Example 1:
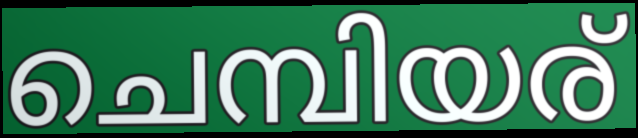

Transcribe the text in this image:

ചെമ്പിയര്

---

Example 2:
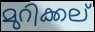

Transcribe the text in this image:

മുറിക്കല്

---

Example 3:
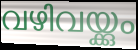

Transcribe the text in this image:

വഴിവയ്ക്കും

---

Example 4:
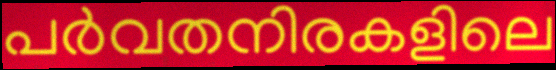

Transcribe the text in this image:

പർവതനിരകളിലെ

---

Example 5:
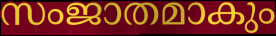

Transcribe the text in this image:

സംജാതമാകും